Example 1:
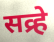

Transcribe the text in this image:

सव्र्हे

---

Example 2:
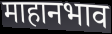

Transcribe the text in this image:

माहानभाव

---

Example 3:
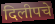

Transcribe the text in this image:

दिलीपचे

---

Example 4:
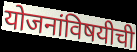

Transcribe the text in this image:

योजनांविषयीची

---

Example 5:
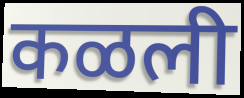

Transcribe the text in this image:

कळली